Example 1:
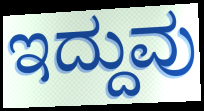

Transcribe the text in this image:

ಇದ್ದುವು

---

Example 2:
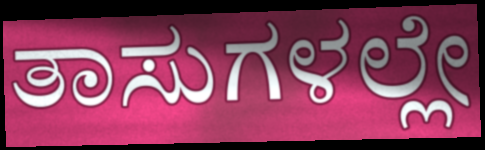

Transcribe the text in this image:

ತಾಸುಗಳಲ್ಲೇ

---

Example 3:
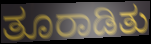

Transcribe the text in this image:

ತೂರಾಡಿತು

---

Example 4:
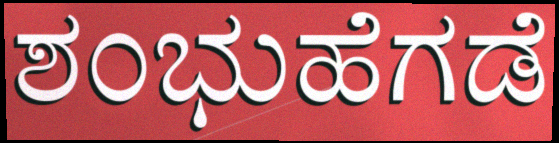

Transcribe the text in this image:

ಶಂಭುಹೆಗಡೆ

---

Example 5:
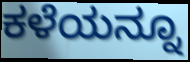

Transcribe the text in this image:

ಕಳೆಯನ್ನೂ